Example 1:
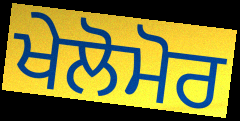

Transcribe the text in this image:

ਖੇਲੋਮੋਰ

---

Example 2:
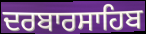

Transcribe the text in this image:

ਦਰਬਾਰਸਾਹਿਬ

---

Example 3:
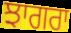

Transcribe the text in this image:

ਝਾਗਰਾ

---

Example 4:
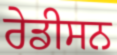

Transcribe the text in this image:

ਰੇਡੀਸਨ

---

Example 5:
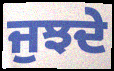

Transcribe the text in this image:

ਜੁਝਦੇ